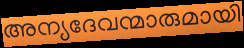
അന്യദേവന്മാരുമായി